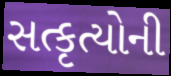
સત્કૃત્યોની